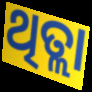
ଥିତ୍ଲା